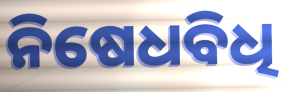
ନିଷେଧବିଧି